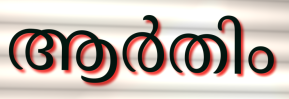
ആർതിം